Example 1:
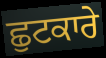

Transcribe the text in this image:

ਛੁਟਕਾਰੇ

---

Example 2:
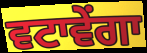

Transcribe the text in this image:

ਵਟਾਵੇਂਗਾ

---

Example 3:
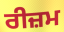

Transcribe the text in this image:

ਰੀਜ਼ਮ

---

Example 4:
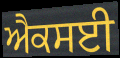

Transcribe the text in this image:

ਐਕਸਈ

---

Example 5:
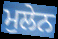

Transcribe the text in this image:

ਮੁਲੇਨ